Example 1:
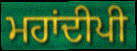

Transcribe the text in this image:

ਮਹਾਂਦੀਪੀ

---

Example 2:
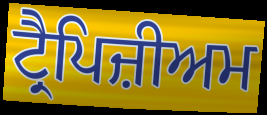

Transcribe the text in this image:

ਟ੍ਰੈਪਿਜ਼ੀਅਮ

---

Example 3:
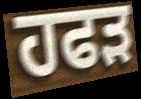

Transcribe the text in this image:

ਹਫੜ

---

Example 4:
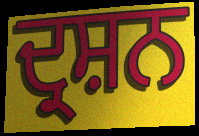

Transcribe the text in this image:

ਦ੍ਰਸ਼ਨ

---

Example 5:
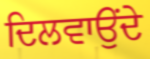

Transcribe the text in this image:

ਦਿਲਵਾਉਂਦੇ